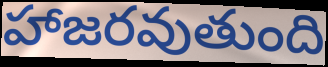
హాజరవుతుంది